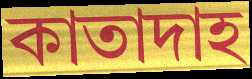
কাতাদাহ